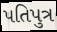
પતિપુત્ર